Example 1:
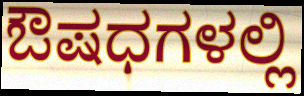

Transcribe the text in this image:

ಔಷಧಗಳಲ್ಲಿ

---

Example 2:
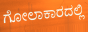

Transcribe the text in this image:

ಗೋಲಾಕಾರದಲ್ಲಿ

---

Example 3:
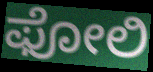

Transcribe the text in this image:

ಫೋಲಿ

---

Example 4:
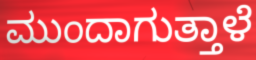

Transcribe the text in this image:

ಮುಂದಾಗುತ್ತಾಳೆ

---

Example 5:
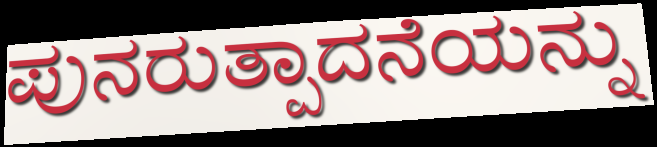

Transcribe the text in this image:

ಪುನರುತ್ಪಾದನೆಯನ್ನು